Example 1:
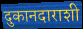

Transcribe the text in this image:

दुकानदाराशी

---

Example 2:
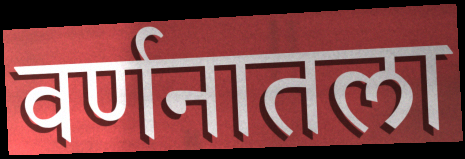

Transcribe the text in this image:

वर्णनातला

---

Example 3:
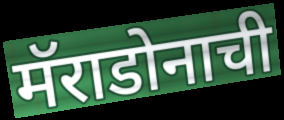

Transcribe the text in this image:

मॅराडोनाची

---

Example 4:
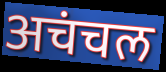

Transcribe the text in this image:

अचंचल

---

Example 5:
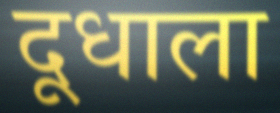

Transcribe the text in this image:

दूधाला